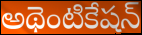
అథెంటికేషన్